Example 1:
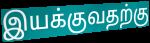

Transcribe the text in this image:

இயக்குவதற்கு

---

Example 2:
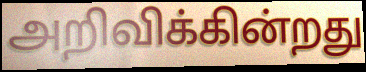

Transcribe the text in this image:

அறிவிக்கின்றது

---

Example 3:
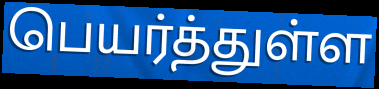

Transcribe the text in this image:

பெயர்த்துள்ள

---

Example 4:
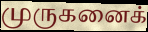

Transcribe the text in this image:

முருகனைக்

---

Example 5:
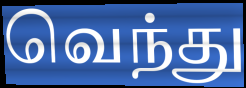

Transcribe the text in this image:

வெந்து